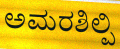
ಅಮರಶಿಲ್ಪಿ